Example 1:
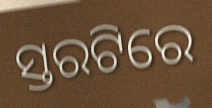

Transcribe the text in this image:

ସ୍ତରଟିରେ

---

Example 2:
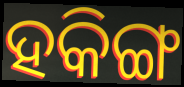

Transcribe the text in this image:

ହକିଙ୍ଗ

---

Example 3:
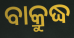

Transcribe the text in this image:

ବାକ୍ରୁଦ୍ଧ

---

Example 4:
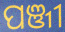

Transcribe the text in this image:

ପଞ୍ଜୀ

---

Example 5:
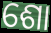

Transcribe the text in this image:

ଶୋ